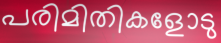
പരിമിതികളോടു